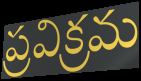
ప్రవిక్రమ